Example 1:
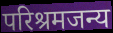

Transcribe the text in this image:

परिश्रमजन्य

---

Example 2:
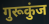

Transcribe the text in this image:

गुरूकुंज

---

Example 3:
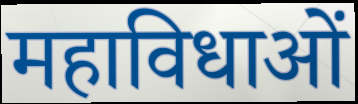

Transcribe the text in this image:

महाविधाओं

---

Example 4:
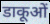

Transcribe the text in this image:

डाकूओं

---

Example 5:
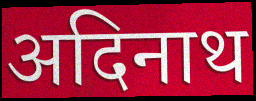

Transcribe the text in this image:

अदिनाथ